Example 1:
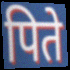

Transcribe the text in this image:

पिते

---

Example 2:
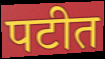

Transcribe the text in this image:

पटीत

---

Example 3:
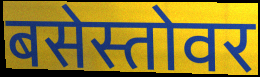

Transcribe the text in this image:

बसेस्तोवर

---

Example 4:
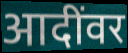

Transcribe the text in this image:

आदींवर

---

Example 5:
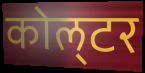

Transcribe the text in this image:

कोल्टर